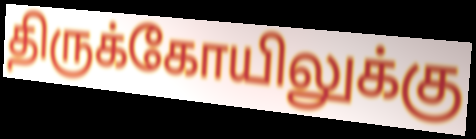
திருக்கோயிலுக்கு